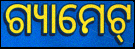
ଗ୍ୟାମେଟ୍